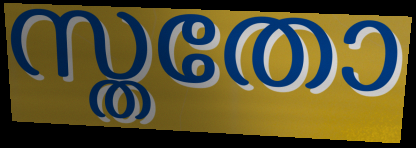
സ്തതോ